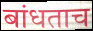
बांधताच